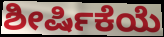
ಶೀರ್ಷಿಕೆಯೆ